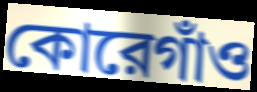
কোরেগাঁও